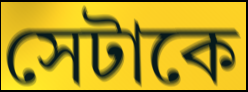
সেটাকে